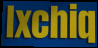
Ixchiq